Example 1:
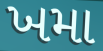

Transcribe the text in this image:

ખમા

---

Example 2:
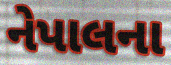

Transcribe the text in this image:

નેપાલના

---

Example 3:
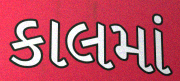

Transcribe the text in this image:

કાલમાં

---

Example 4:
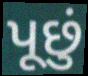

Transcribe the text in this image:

પૂછું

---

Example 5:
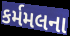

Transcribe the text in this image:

કર્મમલના